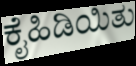
ಕೈಹಿಡಿಯಿತು